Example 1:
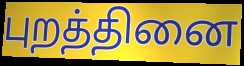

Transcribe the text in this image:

புறத்தினை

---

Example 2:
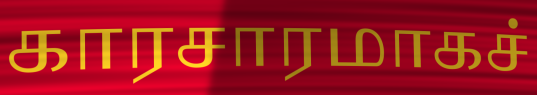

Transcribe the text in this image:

காரசாரமாகச்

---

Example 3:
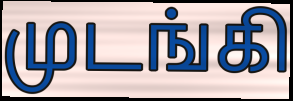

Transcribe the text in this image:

முடங்கி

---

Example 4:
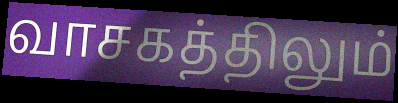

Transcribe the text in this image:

வாசகத்திலும்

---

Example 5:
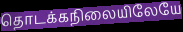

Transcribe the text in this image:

தொடக்கநிலையிலேயே